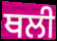
ਥਲੀ